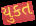
યુકત